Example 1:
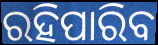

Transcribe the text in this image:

ରହିପାରିବ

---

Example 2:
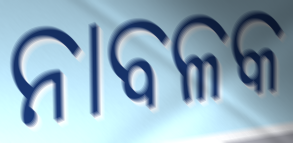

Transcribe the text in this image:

ନାବଳକ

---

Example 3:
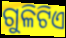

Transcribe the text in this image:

ଗୁଳିଟିଏ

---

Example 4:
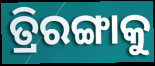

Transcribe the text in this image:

ତ୍ରିରଙ୍ଗାକୁ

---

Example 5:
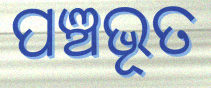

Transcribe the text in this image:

ପଞ୍ଚଭୂତ